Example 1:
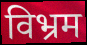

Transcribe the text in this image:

विभ्रम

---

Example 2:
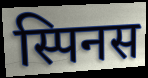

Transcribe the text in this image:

स्पिनस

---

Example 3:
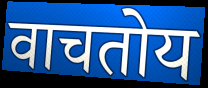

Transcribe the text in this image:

वाचतोय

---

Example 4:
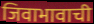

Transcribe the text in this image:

जिवाभावाची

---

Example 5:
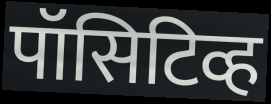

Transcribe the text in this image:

पॉसिटिव्ह